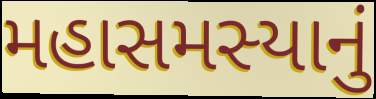
મહાસમસ્યાનું